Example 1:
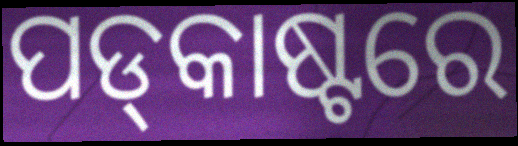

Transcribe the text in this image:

ପଡ୍‌କାଷ୍ଟରେ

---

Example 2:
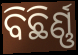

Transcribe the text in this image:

ବିଛିର୍ଣ୍ଣ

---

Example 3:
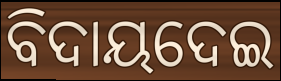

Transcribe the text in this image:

ବିଦାୟଦେଇ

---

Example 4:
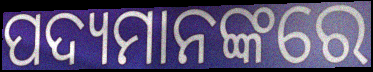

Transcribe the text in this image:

ପଦ୍ୟମାନଙ୍କରେ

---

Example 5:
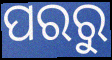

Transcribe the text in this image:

ପରରୁ